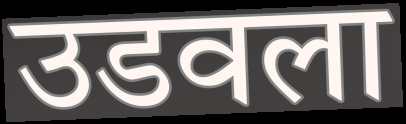
उडवला